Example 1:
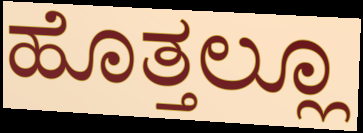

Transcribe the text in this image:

ಹೊತ್ತಲ್ಲೂ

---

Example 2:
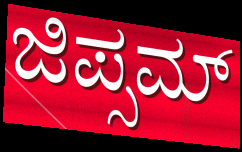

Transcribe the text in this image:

ಜಿಪ್ಸಮ್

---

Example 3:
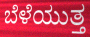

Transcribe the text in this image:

ಬೆಳೆಯುತ್ತ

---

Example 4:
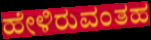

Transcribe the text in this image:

ಹೇಳಿರುವಂತಹ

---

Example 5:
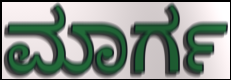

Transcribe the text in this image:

ಮಾರ್ಗ